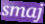
smaj